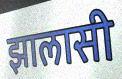
झालासी